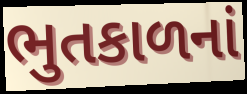
ભુતકાળનાં